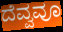
ದೆವ್ವವೂ